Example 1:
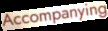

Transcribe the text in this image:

Accompanying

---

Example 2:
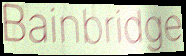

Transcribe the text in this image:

Bainbridge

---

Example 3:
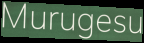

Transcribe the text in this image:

Murugesu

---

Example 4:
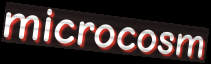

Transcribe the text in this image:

microcosm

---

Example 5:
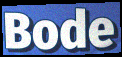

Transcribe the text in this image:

Bode